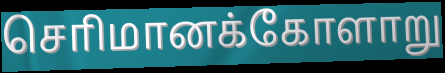
செரிமானக்கோளாறு